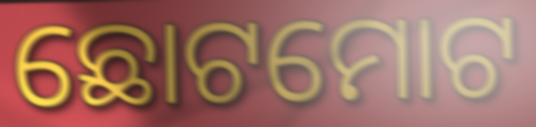
ଛୋଟମୋଟ